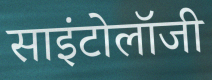
साइंटोलॉजी